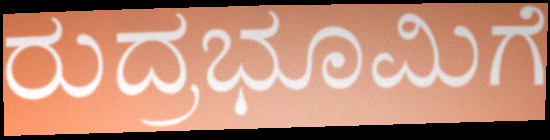
ರುದ್ರಭೂಮಿಗೆ